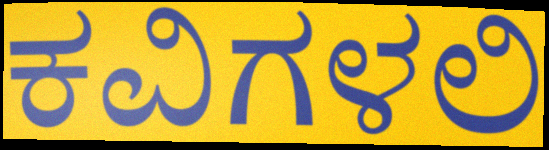
ಕವಿಗಳಲಿ